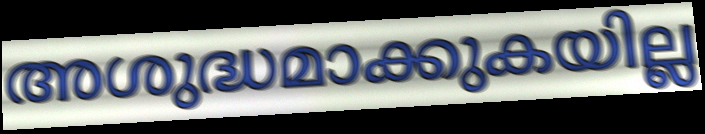
അശുദ്ധമാക്കുകയില്ല